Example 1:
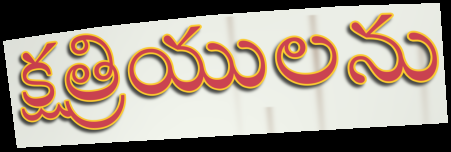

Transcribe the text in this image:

క్షత్రియులను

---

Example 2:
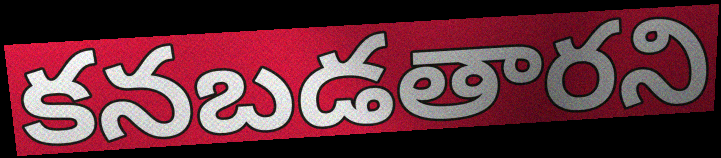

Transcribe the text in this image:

కనబడతారని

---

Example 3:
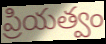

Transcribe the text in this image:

ప్రియత్వం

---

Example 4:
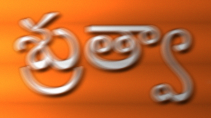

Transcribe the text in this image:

శ్రుత్వా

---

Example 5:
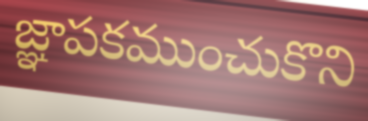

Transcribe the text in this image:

జ్ఞాపకముంచుకొని